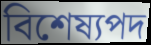
বিশেষ্যপদ